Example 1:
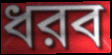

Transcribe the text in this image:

ধরব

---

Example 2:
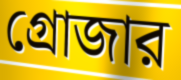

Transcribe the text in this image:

গ্রোজার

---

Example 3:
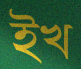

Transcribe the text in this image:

ইখ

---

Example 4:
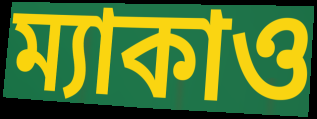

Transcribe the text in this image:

ম্যাকাও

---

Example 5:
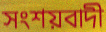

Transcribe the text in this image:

সংশয়বাদী